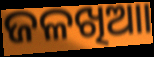
ଜଳଖିଆା